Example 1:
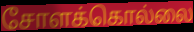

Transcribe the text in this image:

சோளக்கொல்லை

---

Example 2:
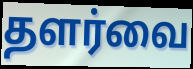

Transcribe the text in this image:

தளர்வை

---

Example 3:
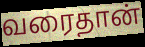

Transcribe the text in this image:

வரைதான்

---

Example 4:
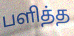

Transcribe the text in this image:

பளித்த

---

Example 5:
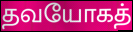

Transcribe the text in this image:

தவயோகத்